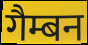
गैम्बन